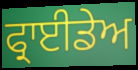
ਫ੍ਰਾਈਡੇਅ